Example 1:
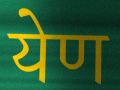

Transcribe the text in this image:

येण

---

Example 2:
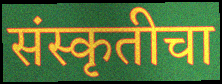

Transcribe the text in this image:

संस्कृतीचा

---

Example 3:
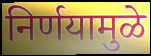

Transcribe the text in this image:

निर्णयामुळे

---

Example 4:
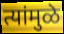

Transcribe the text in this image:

त्यांमुळे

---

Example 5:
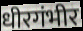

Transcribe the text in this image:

धीरगंभीर